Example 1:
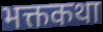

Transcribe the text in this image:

भक्तकथा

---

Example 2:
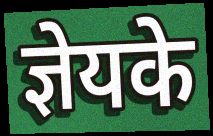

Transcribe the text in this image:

ज्ञेयके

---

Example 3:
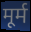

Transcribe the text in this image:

मूर्म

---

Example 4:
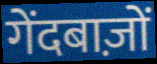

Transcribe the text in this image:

गेंदबाज़ों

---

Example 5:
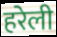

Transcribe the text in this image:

हरेली